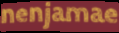
nenjamae